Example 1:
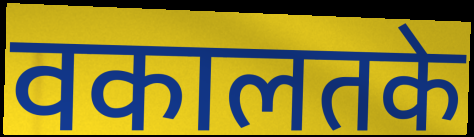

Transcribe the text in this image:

वकालतके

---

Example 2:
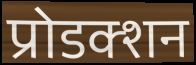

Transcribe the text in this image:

प्रोडक्‍शन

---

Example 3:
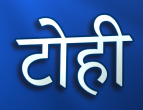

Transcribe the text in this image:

टोही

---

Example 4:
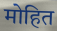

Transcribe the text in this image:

मोहित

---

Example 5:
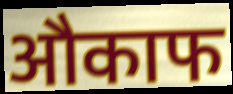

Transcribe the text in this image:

औकाफ